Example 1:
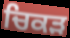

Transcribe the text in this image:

ਚਿਕੜ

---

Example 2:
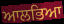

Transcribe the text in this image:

ਆਲਭਿਆ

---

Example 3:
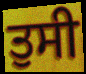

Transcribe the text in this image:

ਤੁਸੀ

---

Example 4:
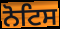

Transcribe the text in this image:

ਨੋਟਿਸ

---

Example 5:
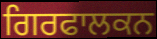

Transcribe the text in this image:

ਗਿਰਫਾਲਕਨ